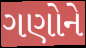
ગણોને